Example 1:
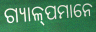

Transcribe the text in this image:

ଗ୍ୟାଳ୍‍ପମାନେ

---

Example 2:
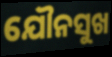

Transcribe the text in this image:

ଯୌନସୁଖ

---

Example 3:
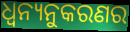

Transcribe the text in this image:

ଧ୍ବନ୍ୟନୁକରଣର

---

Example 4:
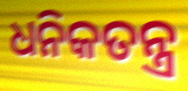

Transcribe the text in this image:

ଧନିକତନ୍ତ୍ର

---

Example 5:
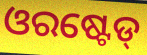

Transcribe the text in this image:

ଓରଷ୍ଟେଡ୍